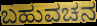
ಬಹುವಚನ